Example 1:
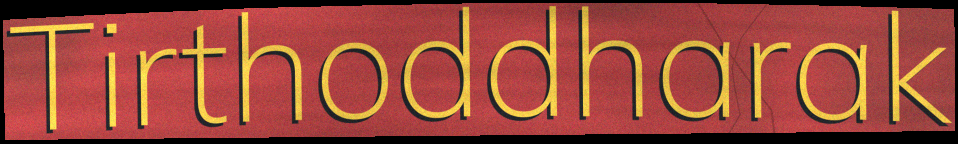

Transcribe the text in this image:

Tirthoddharak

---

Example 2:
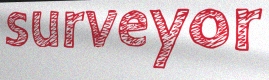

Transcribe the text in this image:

surveyor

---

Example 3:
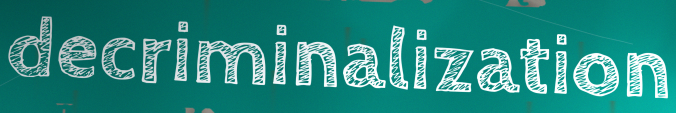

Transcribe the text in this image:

decriminalization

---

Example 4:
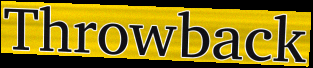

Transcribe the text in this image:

Throwback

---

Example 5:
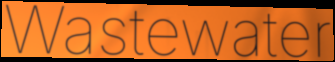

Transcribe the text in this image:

Wastewater